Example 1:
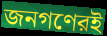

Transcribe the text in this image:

জনগণেরই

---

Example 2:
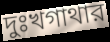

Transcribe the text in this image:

দুঃখগাথার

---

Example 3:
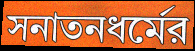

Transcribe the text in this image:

সনাতনধর্মের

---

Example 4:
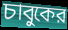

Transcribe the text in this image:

চাবুকের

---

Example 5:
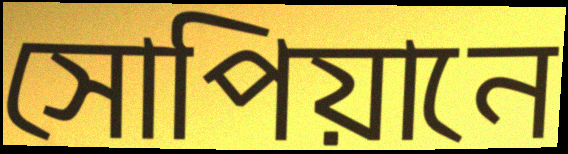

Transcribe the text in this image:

সোপিয়ানে